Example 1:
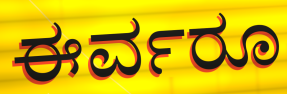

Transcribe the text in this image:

ಈರ್ವರೂ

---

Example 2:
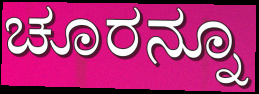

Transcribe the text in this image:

ಚೂರನ್ನೂ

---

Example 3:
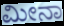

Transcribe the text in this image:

ಮೀನಾ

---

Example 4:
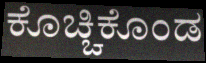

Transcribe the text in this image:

ಕೊಚ್ಚಿಕೊಂಡ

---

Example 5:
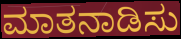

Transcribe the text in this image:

ಮಾತನಾಡಿಸು